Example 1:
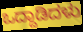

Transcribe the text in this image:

ಒದ್ದಾಡಿದಳು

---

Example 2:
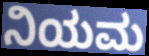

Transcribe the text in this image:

ನಿಯಮ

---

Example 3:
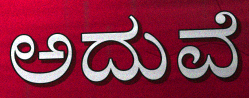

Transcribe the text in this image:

ಅದುವೆ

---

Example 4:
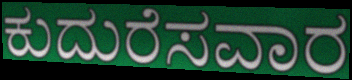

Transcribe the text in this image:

ಕುದುರೆಸವಾರ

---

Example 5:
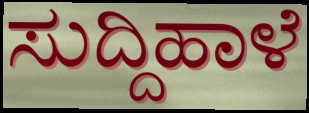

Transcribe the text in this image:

ಸುದ್ದಿಹಾಳೆ